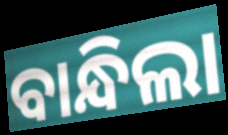
ବାନ୍ଧିଲା